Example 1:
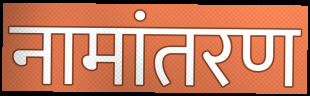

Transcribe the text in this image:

नामांतरण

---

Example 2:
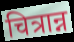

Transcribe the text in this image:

चित्रान्न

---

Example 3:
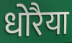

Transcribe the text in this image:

धोरैया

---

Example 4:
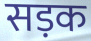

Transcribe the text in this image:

सड़क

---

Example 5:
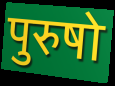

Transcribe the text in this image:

पुरुषो